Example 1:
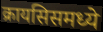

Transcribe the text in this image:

क्रायसिसमध्ये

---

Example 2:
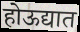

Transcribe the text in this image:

होऊद्यात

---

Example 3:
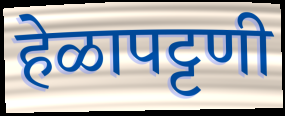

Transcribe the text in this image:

हेळापट्टणी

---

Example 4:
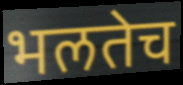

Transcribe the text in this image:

भलतेच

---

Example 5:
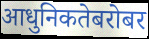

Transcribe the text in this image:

आधुनिकतेबरोबर